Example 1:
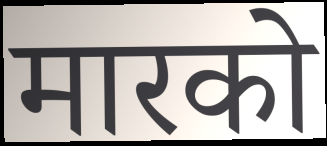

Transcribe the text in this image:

मारको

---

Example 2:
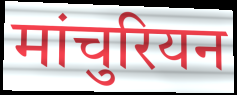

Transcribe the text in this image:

मांचुरियन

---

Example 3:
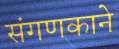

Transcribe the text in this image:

संगणकाने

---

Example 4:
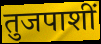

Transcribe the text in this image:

तुजपाशीं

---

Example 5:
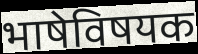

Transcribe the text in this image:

भाषेविषयक